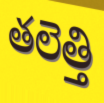
తలెత్తి